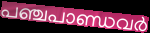
പഞ്ചപാണ്ഡവർ